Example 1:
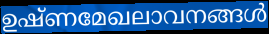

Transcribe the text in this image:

ഉഷ്ണമേഖലാവനങ്ങൾ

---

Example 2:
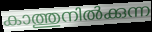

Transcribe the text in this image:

കാത്തുനിൽക്കുന്ന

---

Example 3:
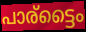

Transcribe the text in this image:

പാര്ട്ടൈം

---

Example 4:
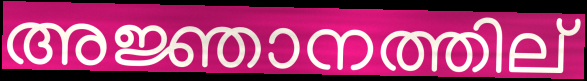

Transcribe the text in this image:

അജ്ഞാനത്തില്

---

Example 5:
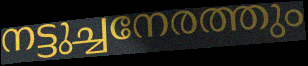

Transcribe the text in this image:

നട്ടുച്ചനേരത്തും